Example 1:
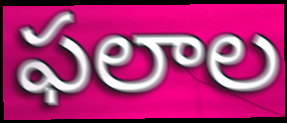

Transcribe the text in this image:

ఫలాల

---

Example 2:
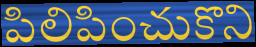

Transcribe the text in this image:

పిలిపించుకొని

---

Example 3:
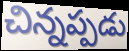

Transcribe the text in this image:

చిన్నప్పడు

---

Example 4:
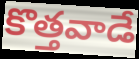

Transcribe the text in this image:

కొత్తవాడే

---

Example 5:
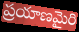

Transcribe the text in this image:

ప్రయాణమైరి